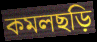
কমলছড়ি